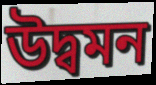
উদ্বমন